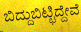
ಬಿದ್ದುಬಿಟ್ಟಿದ್ದೇವೆ